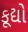
કૂદ્યો